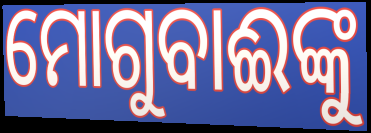
ମୋଗୁବାଈଙ୍କୁ